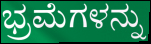
ಭ್ರಮೆಗಳನ್ನು